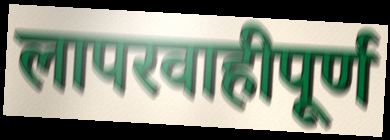
लापरवाहीपूर्ण